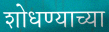
शोधण्याच्या